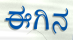
ಈಗಿನ